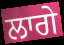
ਲਾਗੇ